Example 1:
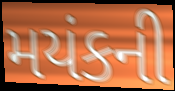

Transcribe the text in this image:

મયંકની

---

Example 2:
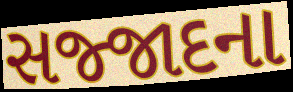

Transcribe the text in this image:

સજ્જાદના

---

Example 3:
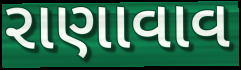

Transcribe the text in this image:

રાણાવાવ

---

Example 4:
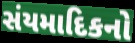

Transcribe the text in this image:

સંયમાદિકનો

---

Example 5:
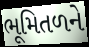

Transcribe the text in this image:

ભૂમિતળને